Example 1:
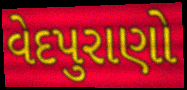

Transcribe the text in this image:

વેદપુરાણો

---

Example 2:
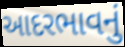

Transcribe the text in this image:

આદરભાવનું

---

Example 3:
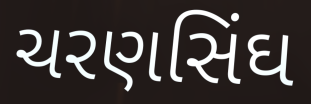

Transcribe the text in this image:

ચરણસિંઘ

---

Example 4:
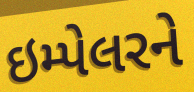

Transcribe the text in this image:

ઇમ્પેલરને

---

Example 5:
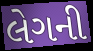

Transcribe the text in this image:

લેગની